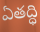
ఏతద్ధి